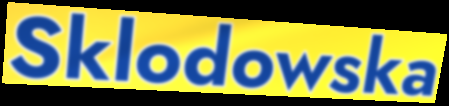
Sklodowska